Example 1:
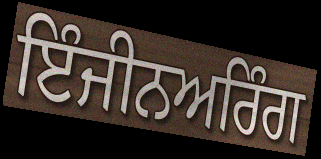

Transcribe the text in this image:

ਇੰਜੀਨਅਰਿੰਗ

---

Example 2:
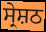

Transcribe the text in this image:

ਸ੍ਰੇਸ਼ਠ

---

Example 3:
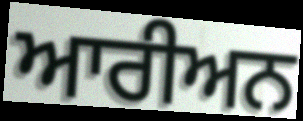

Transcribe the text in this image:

ਆਰੀਅਨ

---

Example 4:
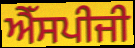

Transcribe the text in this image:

ਐੱਸਪੀਜੀ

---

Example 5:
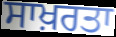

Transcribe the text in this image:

ਸਾਖ਼ਰਤਾ